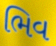
ભિવ